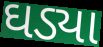
ઘડ્યા